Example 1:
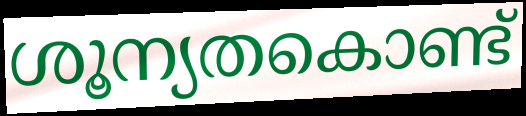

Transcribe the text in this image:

ശൂന്യതകൊണ്ട്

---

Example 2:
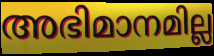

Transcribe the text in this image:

അഭിമാനമില്ല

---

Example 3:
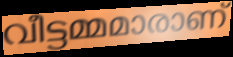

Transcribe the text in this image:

വീട്ടമ്മമാരാണ്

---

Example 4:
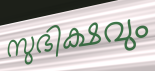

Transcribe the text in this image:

സുഭിക്ഷവും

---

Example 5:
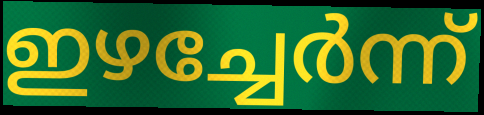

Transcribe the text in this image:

ഇഴച്ചേർന്ന്